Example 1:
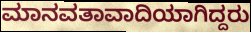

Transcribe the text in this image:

ಮಾನವತಾವಾದಿಯಾಗಿದ್ದರು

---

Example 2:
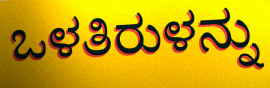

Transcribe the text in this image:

ಒಳತಿರುಳನ್ನು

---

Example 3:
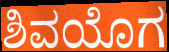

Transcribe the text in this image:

ಶಿವಯೊಗ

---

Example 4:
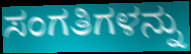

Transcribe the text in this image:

ಸಂಗತಿಗಳನ್ನು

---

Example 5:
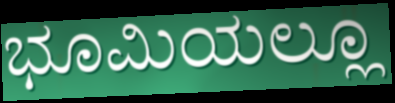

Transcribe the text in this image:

ಭೂಮಿಯಲ್ಲೂ